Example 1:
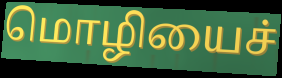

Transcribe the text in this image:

மொழியைச்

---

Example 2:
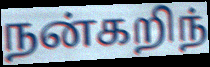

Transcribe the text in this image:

நன்கறிந்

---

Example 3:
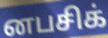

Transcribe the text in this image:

னபசிக்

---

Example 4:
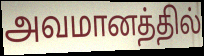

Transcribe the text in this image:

அவமானத்தில்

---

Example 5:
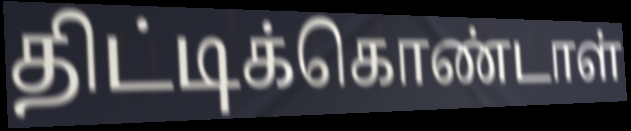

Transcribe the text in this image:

திட்டிக்கொண்டாள்